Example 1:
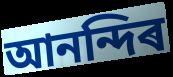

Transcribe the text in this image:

আনন্দিৰ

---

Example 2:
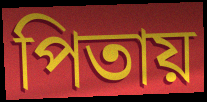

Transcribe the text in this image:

পিতায়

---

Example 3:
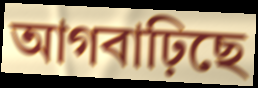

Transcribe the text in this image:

আগবাঢ়িছে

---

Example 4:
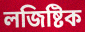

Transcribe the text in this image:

লজিষ্টিক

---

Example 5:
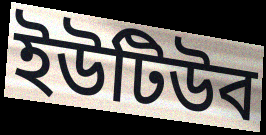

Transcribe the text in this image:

ইউটিউব